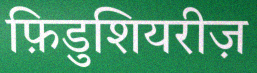
फ़िडुशियरीज़